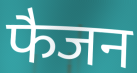
फैजन